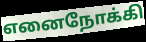
எனைநோக்கி